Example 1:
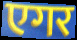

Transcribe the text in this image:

एगर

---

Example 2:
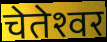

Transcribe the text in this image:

चेतेश्वर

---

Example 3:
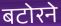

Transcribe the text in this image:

बटोरने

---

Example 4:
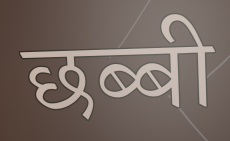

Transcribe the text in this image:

छब्बी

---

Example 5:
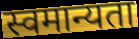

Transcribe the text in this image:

स्वमान्यता